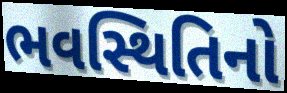
ભવસ્થિતિનો